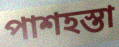
পাশহস্তা